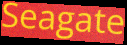
Seagate